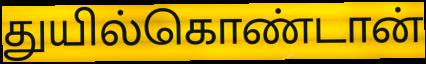
துயில்கொண்டான்